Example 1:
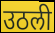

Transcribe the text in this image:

उठली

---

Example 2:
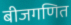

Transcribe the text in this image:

बीजगणित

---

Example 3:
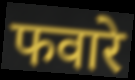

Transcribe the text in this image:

फवारे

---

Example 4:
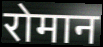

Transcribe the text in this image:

रोमान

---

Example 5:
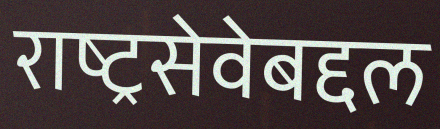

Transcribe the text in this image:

राष्ट्रसेवेबद्दल